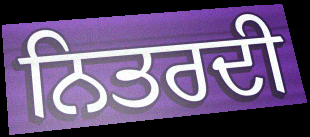
ਨਿਤਰਦੀ